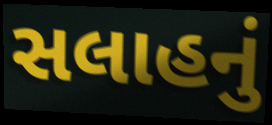
સલાહનું